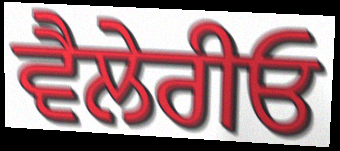
ਵੈਲੇਰੀਓ